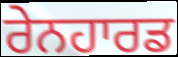
ਰੇਨਹਾਰਡ